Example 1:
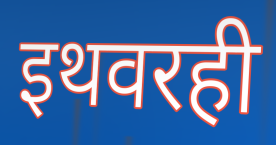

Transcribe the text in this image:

इथवरही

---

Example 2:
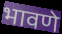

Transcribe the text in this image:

भावणे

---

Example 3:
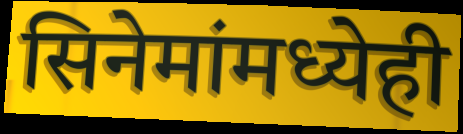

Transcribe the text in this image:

सिनेमांमध्येही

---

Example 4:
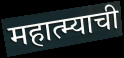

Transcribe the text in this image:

महात्म्याची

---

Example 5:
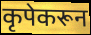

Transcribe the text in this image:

कृपेकरून